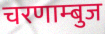
चरणाम्बुज